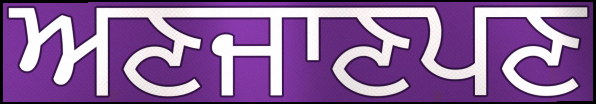
ਅਣਜਾਣਪਣ